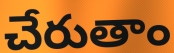
చేరుతాం